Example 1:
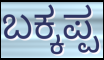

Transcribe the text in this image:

ಬಕ್ಕಪ್ಪ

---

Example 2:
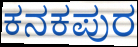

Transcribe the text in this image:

ಕನಕಪುರ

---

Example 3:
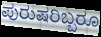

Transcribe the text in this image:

ಪುರುಷರಿಬ್ಬರೂ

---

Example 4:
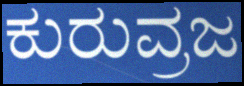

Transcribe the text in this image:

ಕುರುವ್ರಜ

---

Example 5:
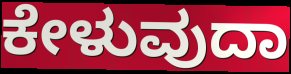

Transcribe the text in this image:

ಕೇಳುವುದಾ